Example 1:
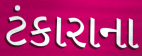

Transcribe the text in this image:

ટંકારાના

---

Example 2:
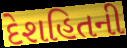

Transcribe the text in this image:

દેશહિતની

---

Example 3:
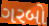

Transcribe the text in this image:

ગરબો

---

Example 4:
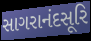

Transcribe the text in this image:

સાગરાનંદસૂરિ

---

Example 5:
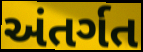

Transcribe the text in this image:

અંતર્ગત